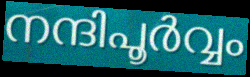
നന്ദിപൂർവ്വം